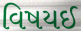
વિષયઈ